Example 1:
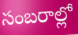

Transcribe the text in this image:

సంబరాల్లో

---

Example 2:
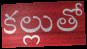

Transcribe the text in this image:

కల్లుతో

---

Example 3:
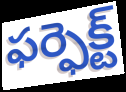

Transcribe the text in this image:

ఫర్ఫెక్ట్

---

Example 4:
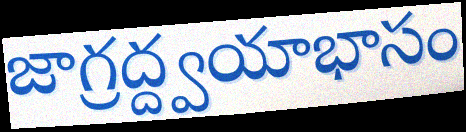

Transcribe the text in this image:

జాగ్రద్ద్వయాభాసం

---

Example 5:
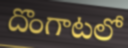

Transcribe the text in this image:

దొంగాటలో